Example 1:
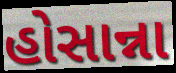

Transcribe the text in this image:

હોસાન્ના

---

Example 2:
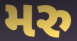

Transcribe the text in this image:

મરુ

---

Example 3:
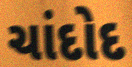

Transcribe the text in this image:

ચાંદોદ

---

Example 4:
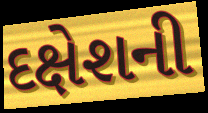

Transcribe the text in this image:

દક્ષેશની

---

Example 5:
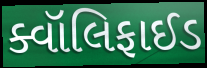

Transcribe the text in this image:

ક્વૉલિફાઈડ